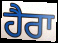
ਹੈਰਾ